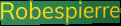
Robespierre